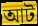
আট